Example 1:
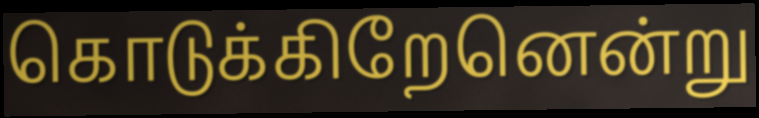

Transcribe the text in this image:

கொடுக்கிறேனென்று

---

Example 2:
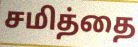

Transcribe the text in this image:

சமித்தை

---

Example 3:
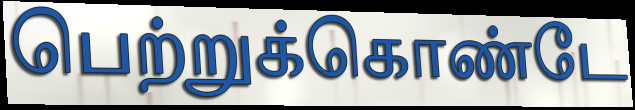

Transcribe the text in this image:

பெற்றுக்கொண்டே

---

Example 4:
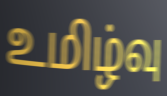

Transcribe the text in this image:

உமிழ்வு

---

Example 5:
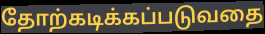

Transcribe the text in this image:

தோற்கடிக்கப்படுவதை